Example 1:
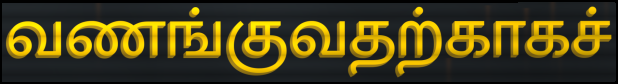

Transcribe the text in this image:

வணங்குவதற்காகச்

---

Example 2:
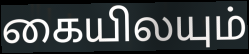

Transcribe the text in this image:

கையிலயும்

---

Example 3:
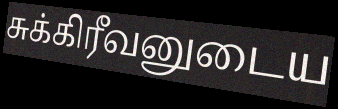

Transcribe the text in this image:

சுக்கிரீவனுடைய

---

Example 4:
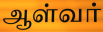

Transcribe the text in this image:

ஆள்வர்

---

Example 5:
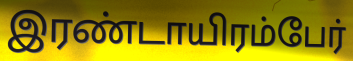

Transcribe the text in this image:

இரண்டாயிரம்பேர்